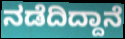
ನಡೆದಿದ್ದಾನೆ